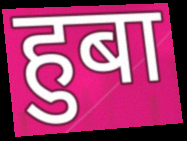
हुबा